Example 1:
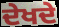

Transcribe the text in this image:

ਦੇਖਦੇ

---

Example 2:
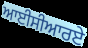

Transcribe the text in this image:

ਆਈਸੀਆਰਏ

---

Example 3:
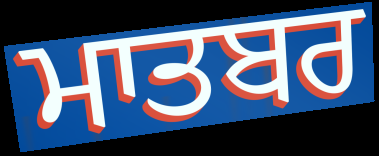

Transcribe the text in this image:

ਮਾਤਬਰ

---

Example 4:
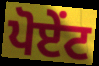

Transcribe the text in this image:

ਪੋਏਂਟ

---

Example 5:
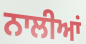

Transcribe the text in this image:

ਨਾਲੀਆਂ